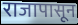
राजापासून